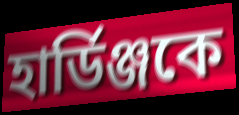
হার্ডিঞ্জকে